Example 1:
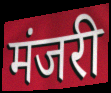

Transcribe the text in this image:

मंजरी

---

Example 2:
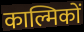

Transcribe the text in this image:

काल्मिकों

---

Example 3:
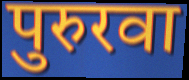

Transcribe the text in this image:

पुरुरवा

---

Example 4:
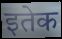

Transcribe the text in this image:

इतेक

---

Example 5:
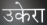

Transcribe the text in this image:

उकेरा